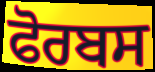
ਫੋਰਬਸ